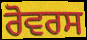
ਰੋਵਰਸ